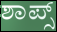
ಶಾಪ್ಸ್